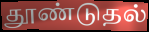
தூண்டுதல்